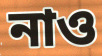
নাও